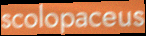
scolopaceus